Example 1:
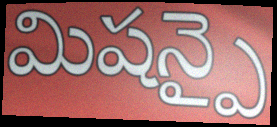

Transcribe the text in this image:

మిషన్పై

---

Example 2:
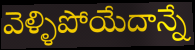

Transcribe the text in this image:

వెళ్ళిపోయేదాన్నే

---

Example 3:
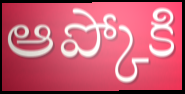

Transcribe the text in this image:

ఆప్కోకి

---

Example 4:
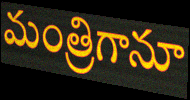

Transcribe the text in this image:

మంత్రిగానూ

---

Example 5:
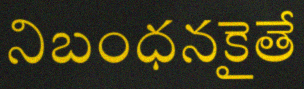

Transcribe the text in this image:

నిబంధనకైతే